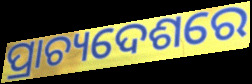
ପ୍ରାଚ୍ୟଦେଶରେ